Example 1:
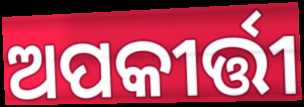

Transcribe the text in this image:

ଅପକୀର୍ତ୍ତୀ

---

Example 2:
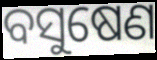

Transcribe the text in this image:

ବସୁଷେଣ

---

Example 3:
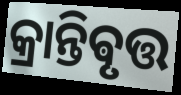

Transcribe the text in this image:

କ୍ରାନ୍ତିଵୃତ୍ତ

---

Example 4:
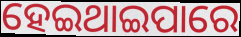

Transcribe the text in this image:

ହେଇଥାଇପାରେ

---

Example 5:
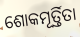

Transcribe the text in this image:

ଶୋକମୂର୍ତ୍ତିତା